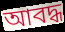
আবদ্ধ